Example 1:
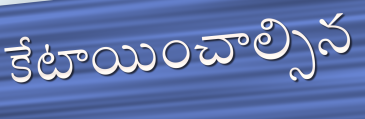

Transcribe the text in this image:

కేటాయించాల్సిన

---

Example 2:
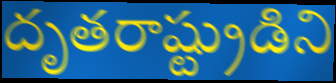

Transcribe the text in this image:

దృతరాష్ట్రుడిని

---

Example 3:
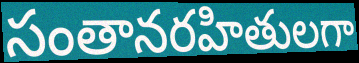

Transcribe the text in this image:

సంతానరహితులగా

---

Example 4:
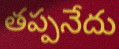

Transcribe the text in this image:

తప్పనేదు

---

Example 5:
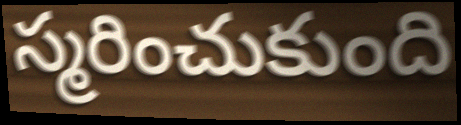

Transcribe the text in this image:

స్మరించుకుంది